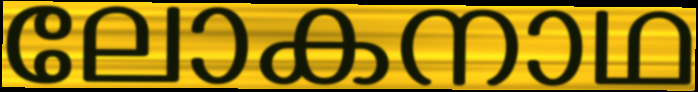
ലോകനാഥ